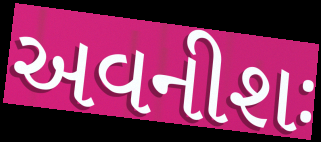
અવનીશઃ